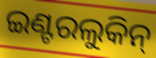
ଇଣ୍ଟରଲୁକିନ୍